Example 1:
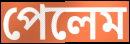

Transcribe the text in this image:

পেলেম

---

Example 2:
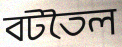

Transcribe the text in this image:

বটতৈল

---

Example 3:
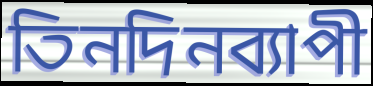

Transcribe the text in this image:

তিনদিনব্যাপী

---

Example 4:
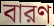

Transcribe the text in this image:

বারণ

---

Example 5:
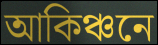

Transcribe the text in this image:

আকিঞ্চনে